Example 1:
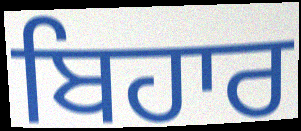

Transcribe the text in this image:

ਬਿਹਾਰ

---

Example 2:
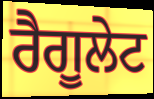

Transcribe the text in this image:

ਰੈਗੂਲੇਟ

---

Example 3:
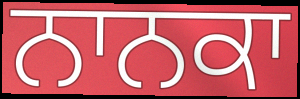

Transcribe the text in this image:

ਨਾਨਕਾ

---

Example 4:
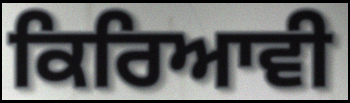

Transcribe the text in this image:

ਕਿਰਿਆਵੀ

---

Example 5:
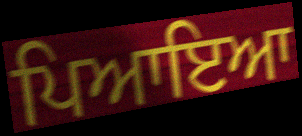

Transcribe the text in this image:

ਪਿਆਇਆ